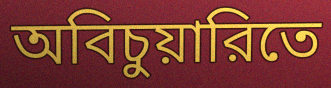
অবিচুয়ারিতে